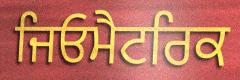
ਜਿਓਮੈਟਰਿਕ